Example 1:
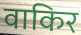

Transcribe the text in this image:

वाकिर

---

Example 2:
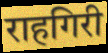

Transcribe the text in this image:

राहगिरी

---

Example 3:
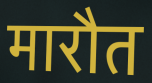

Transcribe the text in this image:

मारौत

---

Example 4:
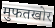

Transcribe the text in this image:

मुफतखोर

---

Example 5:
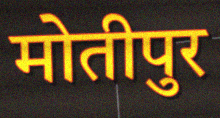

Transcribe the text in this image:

मोतीपुर